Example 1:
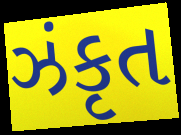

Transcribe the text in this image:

ઝંકૃત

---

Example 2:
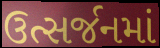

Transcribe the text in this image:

ઉત્સર્જનમાં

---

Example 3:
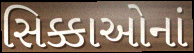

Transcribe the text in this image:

સિક્કાઓનાં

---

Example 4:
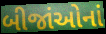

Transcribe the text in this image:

બીજાંઓનાં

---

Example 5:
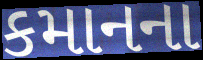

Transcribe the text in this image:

કમાનના